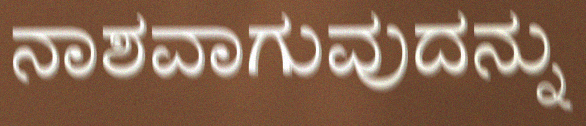
ನಾಶವಾಗುವುದನ್ನು